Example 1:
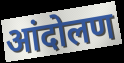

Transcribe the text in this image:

आंदोलण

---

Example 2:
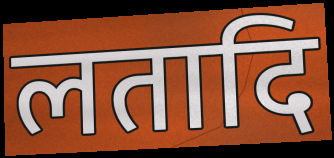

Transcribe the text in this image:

लतादि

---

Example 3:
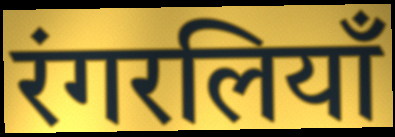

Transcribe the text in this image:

रंगरलियाँ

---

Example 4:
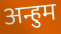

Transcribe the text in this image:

अन्हुम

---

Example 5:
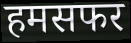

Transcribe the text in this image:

हमसफर